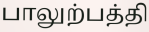
பாலுற்பத்தி